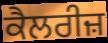
ਕੈਲਰੀਜ਼